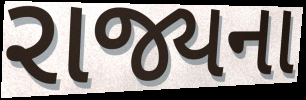
રાજ્યના